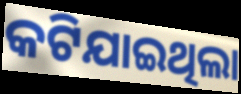
କଟିଯାଇଥିଲା